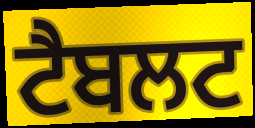
ਟੈਬਲਟ